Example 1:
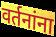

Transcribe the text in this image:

वर्तनांना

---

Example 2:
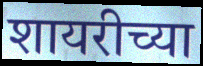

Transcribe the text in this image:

शायरीच्या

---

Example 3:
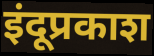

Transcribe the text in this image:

इंदूप्रकाश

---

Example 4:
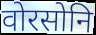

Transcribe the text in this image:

वोरसोनि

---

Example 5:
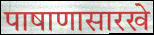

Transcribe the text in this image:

पाषाणासारखे